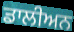
ਡਾਲੀਅਨ